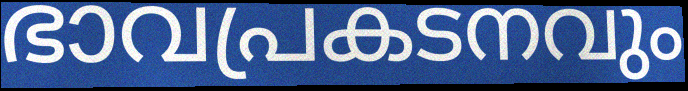
ഭാവപ്രകടനവും